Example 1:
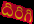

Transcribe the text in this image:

దిరిగి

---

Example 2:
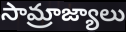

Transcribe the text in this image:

సామ్రాజ్యాలు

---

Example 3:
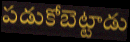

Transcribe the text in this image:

పడుకోబెట్టాడు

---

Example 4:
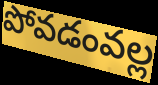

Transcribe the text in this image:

పోవడంవల్ల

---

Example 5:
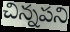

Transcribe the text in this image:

చిన్నపని